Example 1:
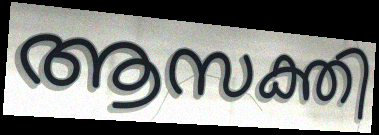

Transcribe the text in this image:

ആസക്തി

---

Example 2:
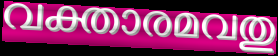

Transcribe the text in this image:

വക്താരമവതു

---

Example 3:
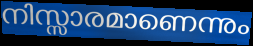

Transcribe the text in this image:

നിസ്സാരമാണെന്നും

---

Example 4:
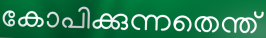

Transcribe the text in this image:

കോപിക്കുന്നതെന്ത്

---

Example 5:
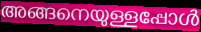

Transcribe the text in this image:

അങ്ങനെയുള്ളപ്പോൾ